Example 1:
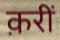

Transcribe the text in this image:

क़रीं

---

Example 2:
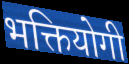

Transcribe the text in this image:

भक्तियोगी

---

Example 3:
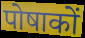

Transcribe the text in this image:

पोषाकों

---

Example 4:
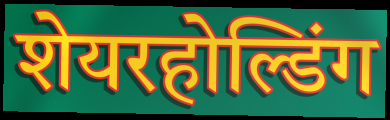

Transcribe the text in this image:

शेयरहोल्डिंग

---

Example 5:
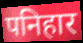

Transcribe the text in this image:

पनिहार